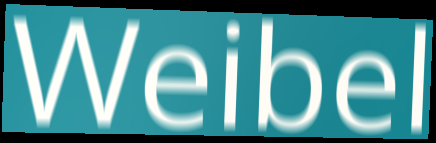
Weibel